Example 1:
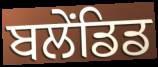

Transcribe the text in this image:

ਬਲੇਂਡਿਡ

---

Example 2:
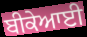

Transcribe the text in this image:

ਬੀਕੇਆਈ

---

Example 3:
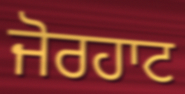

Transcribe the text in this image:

ਜੋਰਹਾਟ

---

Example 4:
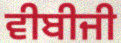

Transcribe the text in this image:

ਵੀਬੀਜੀ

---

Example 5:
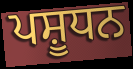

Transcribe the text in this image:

ਪਸ਼ੂਧਨ